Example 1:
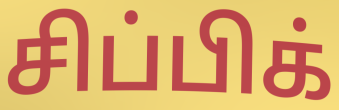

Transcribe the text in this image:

சிப்பிக்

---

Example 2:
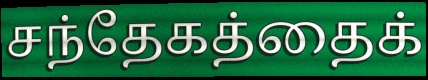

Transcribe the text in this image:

சந்தேகத்தைக்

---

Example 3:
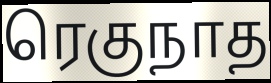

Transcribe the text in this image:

ரெகுநாத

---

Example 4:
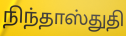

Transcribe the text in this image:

நிந்தாஸ்துதி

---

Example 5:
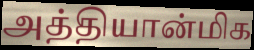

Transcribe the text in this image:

அத்தியான்மிக